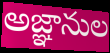
అజ్ఞానుల